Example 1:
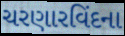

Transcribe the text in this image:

ચરણારવિંદના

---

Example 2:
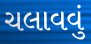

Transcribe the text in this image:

ચલાવવું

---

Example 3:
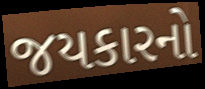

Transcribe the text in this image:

જયકારનો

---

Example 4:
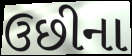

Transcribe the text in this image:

ઉછીના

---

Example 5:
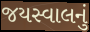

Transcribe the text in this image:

જયસ્વાલનું